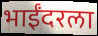
भाईंदरला